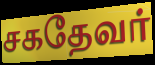
சகதேவர்